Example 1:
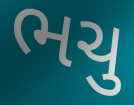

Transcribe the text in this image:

ભચુ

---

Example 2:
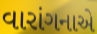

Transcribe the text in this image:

વારાંગનાએ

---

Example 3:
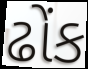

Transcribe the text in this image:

ઢોંક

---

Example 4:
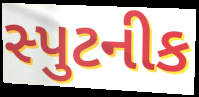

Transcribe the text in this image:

સ્પુટનીક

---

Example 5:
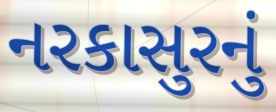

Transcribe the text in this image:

નરકાસુરનું